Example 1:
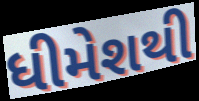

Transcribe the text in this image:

ધીમેશથી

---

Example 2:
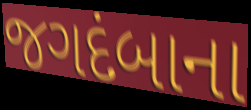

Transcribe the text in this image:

જગદંબાના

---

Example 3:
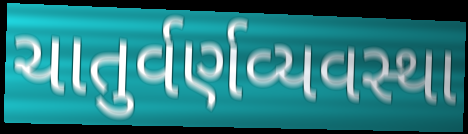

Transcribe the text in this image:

ચાતુર્વર્ણવ્યવસ્થા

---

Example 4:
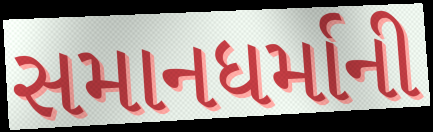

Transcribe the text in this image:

સમાનધર્માની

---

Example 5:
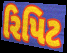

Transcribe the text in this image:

રિપિટ